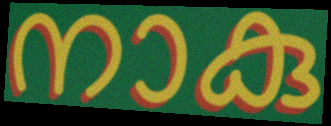
നാകു